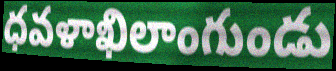
ధవళాఖిలాంగుండు